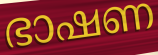
ഭാഷണ